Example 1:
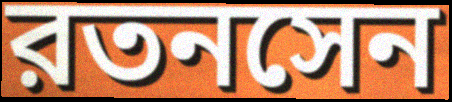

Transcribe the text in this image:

রতনসেন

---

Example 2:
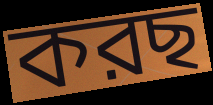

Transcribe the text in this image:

করছ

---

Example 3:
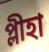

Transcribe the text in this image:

প্লীহা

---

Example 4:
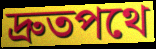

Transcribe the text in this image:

দ্রুতপথে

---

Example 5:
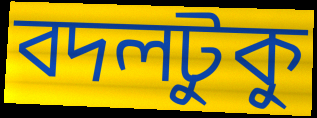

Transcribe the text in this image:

বদলটুকু